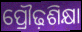
ପ୍ରୌଢ଼ଶିକ୍ଷା